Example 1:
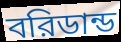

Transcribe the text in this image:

বরিডান্ড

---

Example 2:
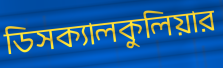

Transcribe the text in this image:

ডিসক্যালকুলিয়ার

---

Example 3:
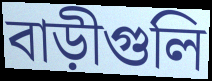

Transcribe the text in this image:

বাড়ীগুলি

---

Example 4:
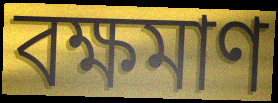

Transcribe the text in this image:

বক্ষমাণ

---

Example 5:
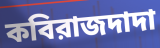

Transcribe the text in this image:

কবিরাজদাদা